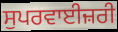
ਸੁਪਰਵਾਈਜ਼ਰੀ